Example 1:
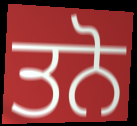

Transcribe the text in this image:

ਤਨੋ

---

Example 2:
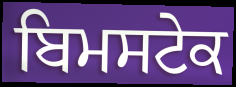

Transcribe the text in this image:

ਬਿਮਸਟੇਕ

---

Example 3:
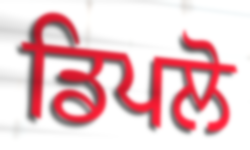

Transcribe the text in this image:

ਡਿਪਲੋ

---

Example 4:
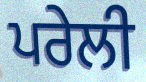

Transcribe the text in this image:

ਪਰੇਲੀ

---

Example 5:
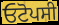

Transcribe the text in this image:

ਓਟੋਪਸੀ